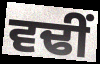
ਵਢੀਂ